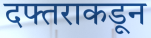
दफ्तराकडून